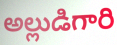
అల్లుడిగారి